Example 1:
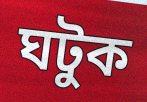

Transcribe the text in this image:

ঘটুক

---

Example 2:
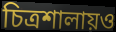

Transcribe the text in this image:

চিত্রশালায়ও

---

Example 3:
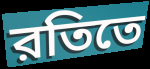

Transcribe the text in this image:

রতিতে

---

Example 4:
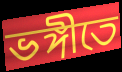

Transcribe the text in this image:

ভঙ্গীতে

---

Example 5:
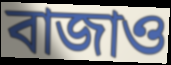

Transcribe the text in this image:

বাজাও